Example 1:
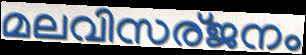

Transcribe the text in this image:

മലവിസര്ജനം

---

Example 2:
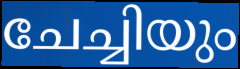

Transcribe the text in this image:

ചേച്ചിയും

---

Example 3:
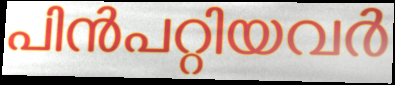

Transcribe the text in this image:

പിൻപറ്റിയവർ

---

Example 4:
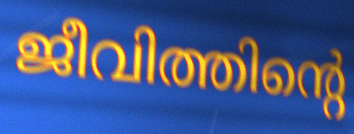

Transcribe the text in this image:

ജീവിത്തിന്റെ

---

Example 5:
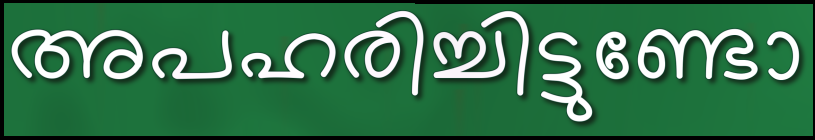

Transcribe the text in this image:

അപഹരിച്ചിട്ടുണ്ടോ